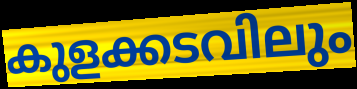
കുളക്കടവിലും